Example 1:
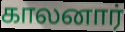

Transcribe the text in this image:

காலனார்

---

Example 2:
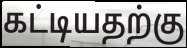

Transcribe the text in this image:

கட்டியதற்கு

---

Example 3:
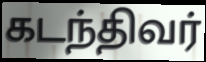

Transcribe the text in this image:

கடந்திவர்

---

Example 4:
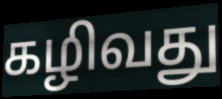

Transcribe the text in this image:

கழிவது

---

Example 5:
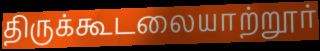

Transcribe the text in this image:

திருக்கூடலையாற்றூர்